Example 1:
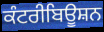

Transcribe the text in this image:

ਕੰਟਰੀਬਿਊਸ਼ਨ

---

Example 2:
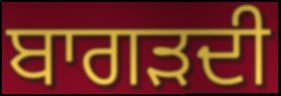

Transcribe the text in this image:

ਬਾਗੜਦੀ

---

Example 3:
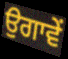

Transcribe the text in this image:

ਉਗਾਵੇਂ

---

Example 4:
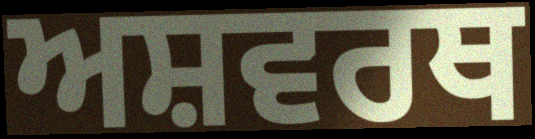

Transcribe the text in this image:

ਅਸ਼ਵਰਥ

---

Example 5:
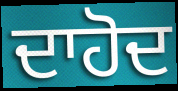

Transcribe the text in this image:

ਦਾਹੋਦ